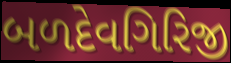
બળદેવગિરિજી